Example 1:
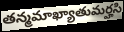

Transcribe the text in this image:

తన్మమాఖ్యాతుమర్హసి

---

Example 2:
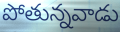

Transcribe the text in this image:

పోతున్నవాడు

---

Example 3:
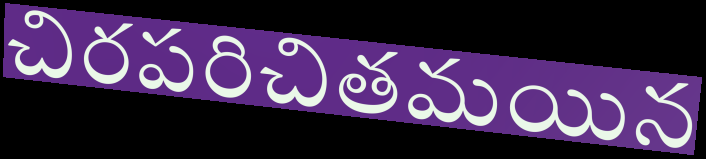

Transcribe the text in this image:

చిరపరిచితమయిన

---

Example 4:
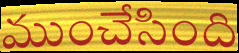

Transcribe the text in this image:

ముంచేసింది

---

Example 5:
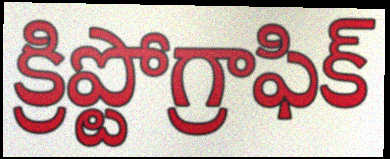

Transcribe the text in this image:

క్రిప్టోగ్రాఫిక్